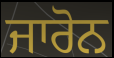
ਜਾਰੋਨ